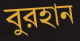
বুরহান